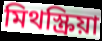
মিথস্ক্রিয়া